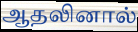
ஆதலினால்